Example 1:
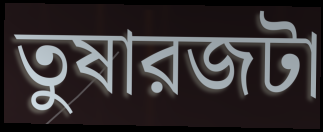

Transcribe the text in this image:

তুষারজটা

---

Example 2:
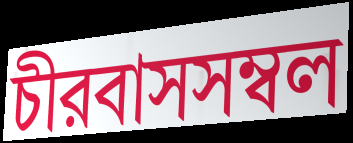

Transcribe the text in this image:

চীরবাসসম্বল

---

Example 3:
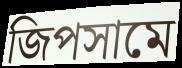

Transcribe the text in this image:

জিপসামে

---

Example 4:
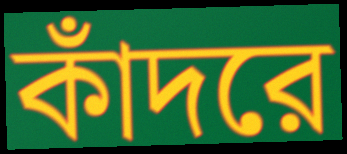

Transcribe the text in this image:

কাঁদরে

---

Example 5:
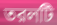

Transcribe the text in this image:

তরলটি